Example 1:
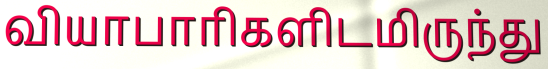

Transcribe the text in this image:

வியாபாரிகளிடமிருந்து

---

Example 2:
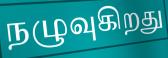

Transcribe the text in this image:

நழுவுகிறது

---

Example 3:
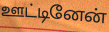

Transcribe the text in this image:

ஊட்டினேன்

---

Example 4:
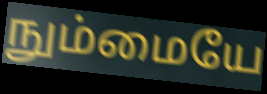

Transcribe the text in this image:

நும்மையே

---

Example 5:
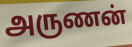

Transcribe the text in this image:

அருணன்